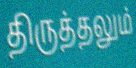
திருத்தலும்